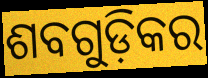
ଶବଗୁଡ଼ିକର